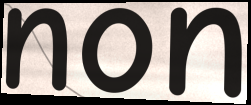
non